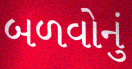
બળવોનું